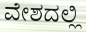
ವೇಶದಲ್ಲಿ